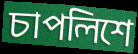
চাপলিশে